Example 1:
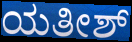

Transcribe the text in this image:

ಯತೀಶ್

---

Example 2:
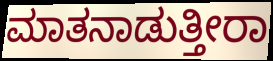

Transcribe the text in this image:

ಮಾತನಾಡುತ್ತೀರಾ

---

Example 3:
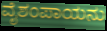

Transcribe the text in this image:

ವೈಶಂಪಾಯನು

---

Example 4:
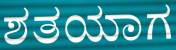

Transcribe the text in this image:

ಶತಯಾಗ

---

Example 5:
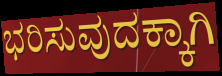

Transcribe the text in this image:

ಭರಿಸುವುದಕ್ಕಾಗಿ